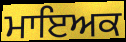
ਮਾਇਅਕ